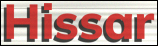
Hissar